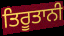
ਤਿਰੂਤਾਨੀ